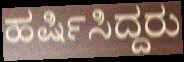
ಹರ್ಷಿಸಿದ್ದರು